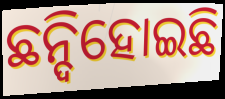
ଛନ୍ଦିହୋଇଛି